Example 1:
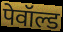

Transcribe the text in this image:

पेवॉल्ड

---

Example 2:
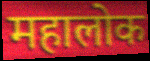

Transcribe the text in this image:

महालोक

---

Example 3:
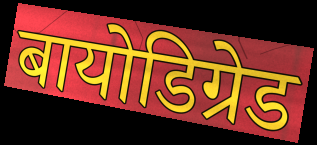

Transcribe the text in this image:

बायोडिग्रेड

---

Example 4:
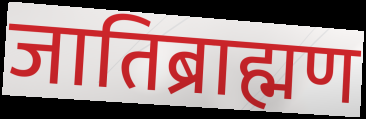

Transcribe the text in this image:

जातिब्राह्मण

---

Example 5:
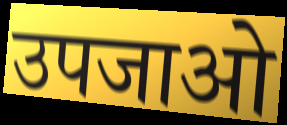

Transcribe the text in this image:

उपजाओ